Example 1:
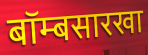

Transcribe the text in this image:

बॉम्बसारखा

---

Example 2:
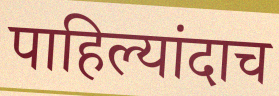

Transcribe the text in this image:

पाहिल्यांदाच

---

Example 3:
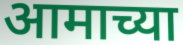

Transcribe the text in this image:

आमाच्या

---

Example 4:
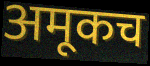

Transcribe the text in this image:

अमूकच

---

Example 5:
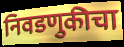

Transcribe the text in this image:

निवडणुकीचा